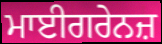
ਮਾਈਗਰੇਨਜ਼